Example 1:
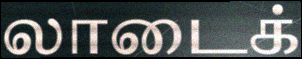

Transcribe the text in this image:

லாடைக்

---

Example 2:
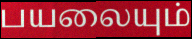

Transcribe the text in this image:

பயலையும்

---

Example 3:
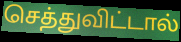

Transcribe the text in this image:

செத்துவிட்டால்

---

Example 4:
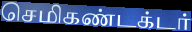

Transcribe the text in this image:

செமிகண்டக்டர்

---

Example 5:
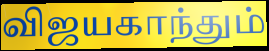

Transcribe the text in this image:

விஜயகாந்தும்